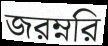
জরম্নরি